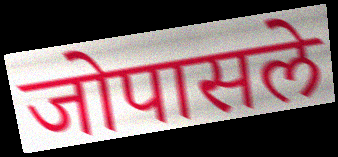
जोपासले